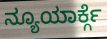
ನ್ಯೂಯಾರ್ಕ್ಗೆ